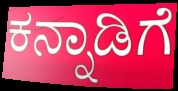
ಕನ್ನಾಡಿಗೆ